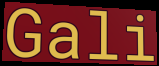
Gali